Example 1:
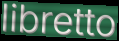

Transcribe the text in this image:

libretto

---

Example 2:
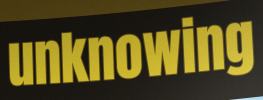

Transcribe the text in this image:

unknowing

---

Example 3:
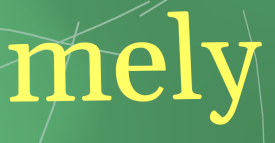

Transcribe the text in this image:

mely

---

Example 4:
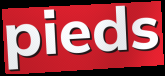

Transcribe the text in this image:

pieds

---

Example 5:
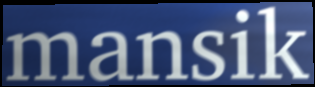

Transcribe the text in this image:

mansik